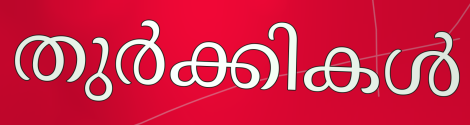
തുർക്കികൾ